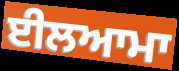
ਈਲਆਮਾ